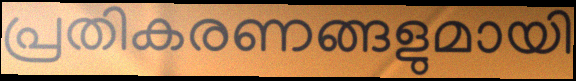
പ്രതികരണങ്ങളുമായി